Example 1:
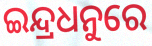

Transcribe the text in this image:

ଇନ୍ଦ୍ରଧନୁରେ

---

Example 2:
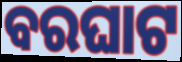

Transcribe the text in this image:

ବରଘାଟ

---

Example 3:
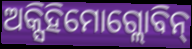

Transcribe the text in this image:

ଅକ୍ସିହିମୋଗ୍ଲୋବିନ୍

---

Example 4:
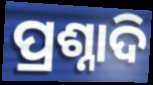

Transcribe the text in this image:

ପ୍ରଶ୍ନାଦି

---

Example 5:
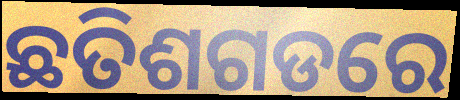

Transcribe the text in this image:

ଛତିଶଗଡରେ